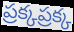
ప్రక్కప్రక్క